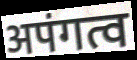
अपंगत्व